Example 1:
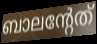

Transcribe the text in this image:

ബാലന്റേത്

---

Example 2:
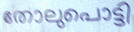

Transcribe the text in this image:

തോലുപൊട്ടി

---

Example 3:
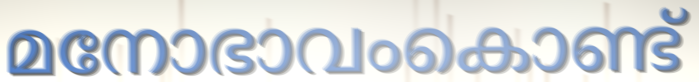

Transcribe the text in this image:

മനോഭാവംകൊണ്ട്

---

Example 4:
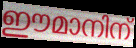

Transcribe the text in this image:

ഈമാനിന്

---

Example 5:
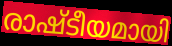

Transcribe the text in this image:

രാഷ്ടീയമായി